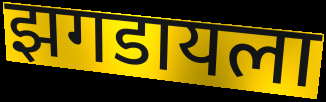
झगडायला